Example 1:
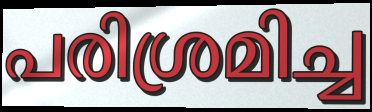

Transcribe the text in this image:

പരിശ്രമിച്ച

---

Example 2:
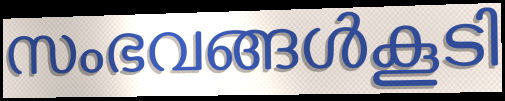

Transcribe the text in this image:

സംഭവങ്ങൾകൂടി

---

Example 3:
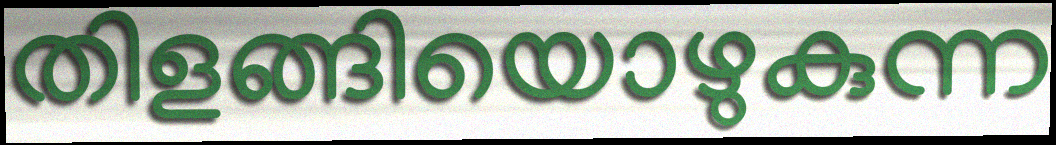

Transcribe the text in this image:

തിളങ്ങിയൊഴുകുന്ന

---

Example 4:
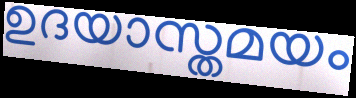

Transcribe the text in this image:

ഉദയാസ്തമയം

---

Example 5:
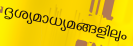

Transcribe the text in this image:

ദൃശ്യമാധ്യമങ്ങളിലും